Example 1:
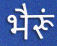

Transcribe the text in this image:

भैरूं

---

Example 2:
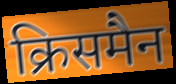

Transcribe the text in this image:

क्रिसमैन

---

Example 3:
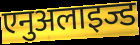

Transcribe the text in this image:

एनुअलाइज्ड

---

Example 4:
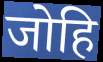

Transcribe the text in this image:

जोहि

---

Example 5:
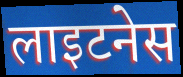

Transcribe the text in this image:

लाइटनेस